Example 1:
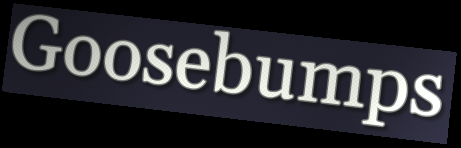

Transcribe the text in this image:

Goosebumps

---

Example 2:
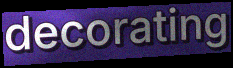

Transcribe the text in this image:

decorating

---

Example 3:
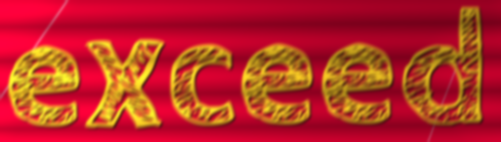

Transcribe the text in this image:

exceed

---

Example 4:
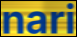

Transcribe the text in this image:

nari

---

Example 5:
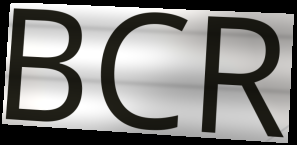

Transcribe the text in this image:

BCR